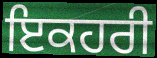
ਇਕਹਰੀ